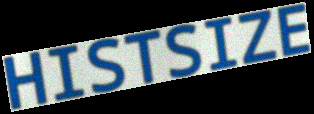
HISTSIZE